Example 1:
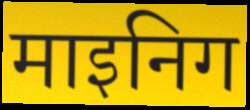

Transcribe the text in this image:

माइनिग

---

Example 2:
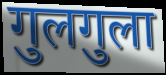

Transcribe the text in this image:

गुलगुला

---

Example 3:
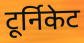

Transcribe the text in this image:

टूर्निकेट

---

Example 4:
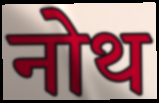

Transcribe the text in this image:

नोथ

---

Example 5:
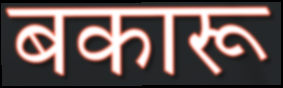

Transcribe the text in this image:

बकारू